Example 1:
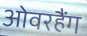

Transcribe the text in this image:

ओवरहैंग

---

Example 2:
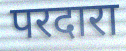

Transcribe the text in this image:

परदारा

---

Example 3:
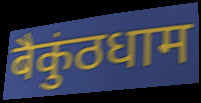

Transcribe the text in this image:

बैकुंठधाम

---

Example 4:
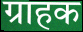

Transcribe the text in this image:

ग्राहक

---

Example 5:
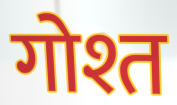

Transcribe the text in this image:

गोश्त